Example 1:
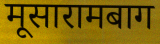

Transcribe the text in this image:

मूसारामबाग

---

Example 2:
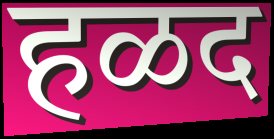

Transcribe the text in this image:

हळद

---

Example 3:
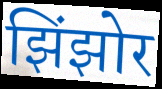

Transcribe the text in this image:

झिंझोर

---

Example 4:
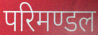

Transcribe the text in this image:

परिमण्डल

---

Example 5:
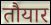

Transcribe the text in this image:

तौयार